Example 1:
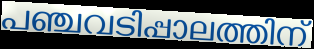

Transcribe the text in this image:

പഞ്ചവടിപ്പാലത്തിന്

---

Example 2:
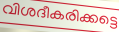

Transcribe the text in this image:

വിശദീകരിക്കട്ടെ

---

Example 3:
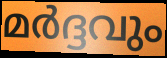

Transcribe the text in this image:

മർദ്ദവും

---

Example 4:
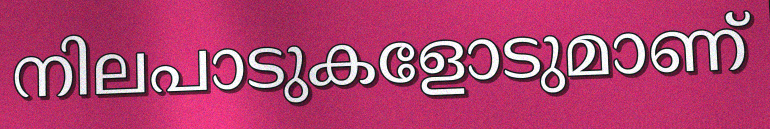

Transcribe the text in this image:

നിലപാടുകളോടുമാണ്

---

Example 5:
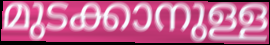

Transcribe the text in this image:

മുടക്കാനുള്ള